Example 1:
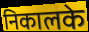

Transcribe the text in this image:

निकालके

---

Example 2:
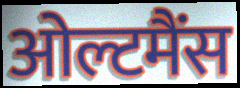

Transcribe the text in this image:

ओल्टमैंस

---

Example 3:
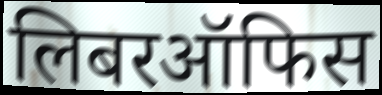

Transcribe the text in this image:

लिबरऑफिस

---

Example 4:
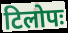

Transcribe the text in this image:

टिलोपः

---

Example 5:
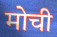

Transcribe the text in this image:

मोची